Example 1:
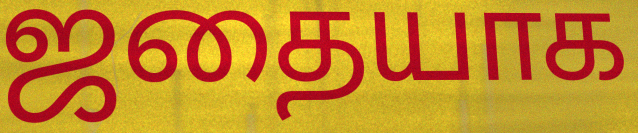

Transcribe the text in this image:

ஜதையாக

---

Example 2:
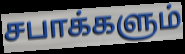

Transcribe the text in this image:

சபாக்களும்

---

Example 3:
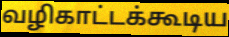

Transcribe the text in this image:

வழிகாட்டக்கூடிய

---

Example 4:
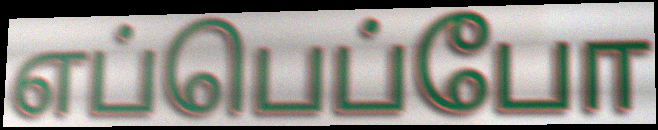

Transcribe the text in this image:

எப்பெப்போ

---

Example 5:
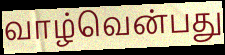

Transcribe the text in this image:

வாழ்வென்பது